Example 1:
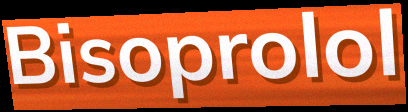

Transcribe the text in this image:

Bisoprolol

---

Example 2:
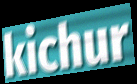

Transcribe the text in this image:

kichur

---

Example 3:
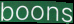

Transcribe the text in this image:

boons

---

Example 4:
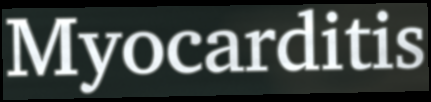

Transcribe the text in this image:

Myocarditis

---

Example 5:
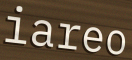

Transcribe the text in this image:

iareo